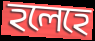
হলেহে